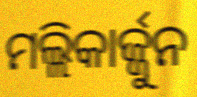
ମଲ୍ଲିକାର୍ଜ୍ଜୁନ